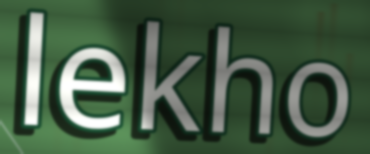
lekho